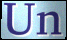
Un